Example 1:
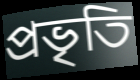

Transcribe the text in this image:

প্ৰভৃতি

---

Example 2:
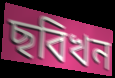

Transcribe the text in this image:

ছবিখন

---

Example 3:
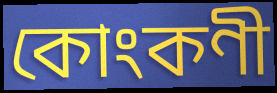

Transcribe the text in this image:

কোংকণী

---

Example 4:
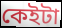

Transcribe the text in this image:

কেইটা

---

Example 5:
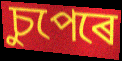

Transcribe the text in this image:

চুপেৰে